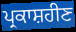
ਪ੍ਰਕਾਸ਼ਹੀਣ